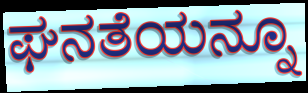
ಘನತೆಯನ್ನೂ